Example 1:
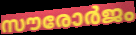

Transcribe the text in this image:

സൗരോർജം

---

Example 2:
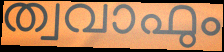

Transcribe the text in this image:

ത്വവാഫും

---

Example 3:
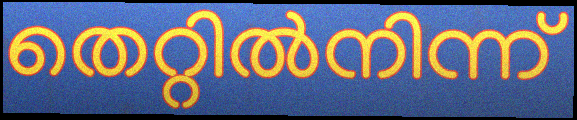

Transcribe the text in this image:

തെറ്റിൽനിന്ന്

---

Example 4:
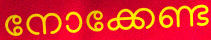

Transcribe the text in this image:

നോക്കേണ്ട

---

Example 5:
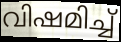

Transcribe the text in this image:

വിഷമിച്ച്